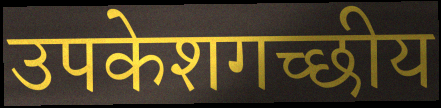
उपकेशगच्छीय